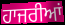
ਹਾਜਰੀਆਂ